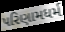
પરિણામધર્મ